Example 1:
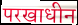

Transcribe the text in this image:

परखाधीन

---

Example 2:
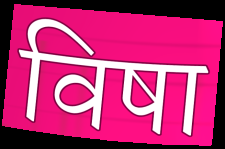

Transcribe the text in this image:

विषा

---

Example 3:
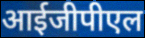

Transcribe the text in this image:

आईजीपीएल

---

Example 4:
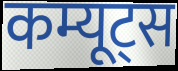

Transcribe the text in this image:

कम्यूट्स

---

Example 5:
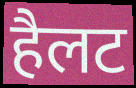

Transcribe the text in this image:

हैलट